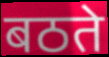
बठते